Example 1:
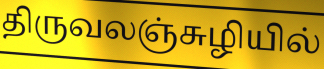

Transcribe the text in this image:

திருவலஞ்சுழியில்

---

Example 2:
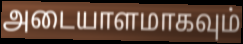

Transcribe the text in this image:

அடையாளமாகவும்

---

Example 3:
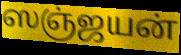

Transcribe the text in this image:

ஸஞ்ஜயன்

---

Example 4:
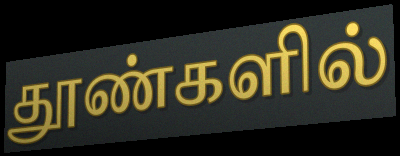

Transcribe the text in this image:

தூண்களில்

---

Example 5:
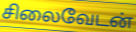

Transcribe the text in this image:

சிலைவேடன்